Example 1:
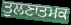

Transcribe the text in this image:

ਤੁਲਣਾਤਮਕ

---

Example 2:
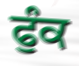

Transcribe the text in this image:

ਫੁੰਕ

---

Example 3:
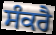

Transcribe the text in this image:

ਸੰਕਰੈ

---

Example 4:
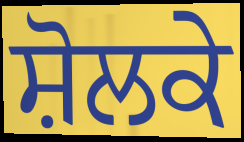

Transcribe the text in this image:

ਸ਼ੋਲਕੇ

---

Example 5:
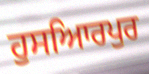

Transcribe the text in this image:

ਹੁਸਆਿਰਪੁਰ